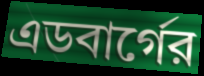
এডবার্গের